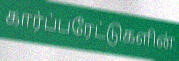
கார்ப்பரேட்டுகளின்